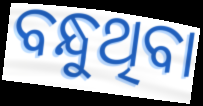
ବନ୍ଧୁଥିବା